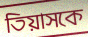
তিয়াসকে